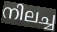
നിലച്ച